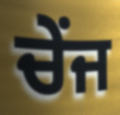
ਚੇਂਜ